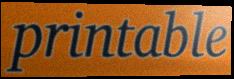
printable